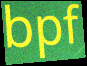
bpf